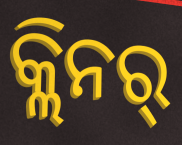
କ୍ଲିନର୍